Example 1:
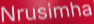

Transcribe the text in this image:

Nrusimha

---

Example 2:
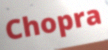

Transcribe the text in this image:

Chopra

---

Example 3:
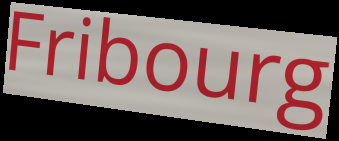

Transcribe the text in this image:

Fribourg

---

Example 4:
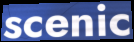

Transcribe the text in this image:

scenic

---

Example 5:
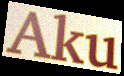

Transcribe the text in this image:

Aku